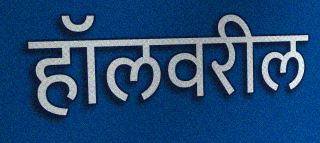
हॉलवरील